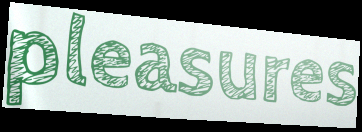
pleasures